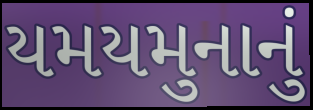
યમયમુનાનું